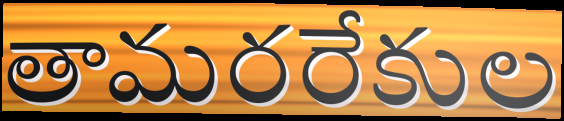
తామరరేకుల